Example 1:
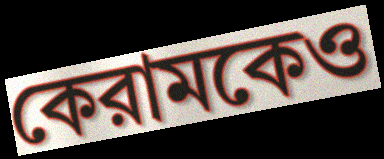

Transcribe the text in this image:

কেরামকেও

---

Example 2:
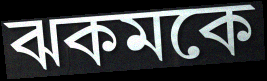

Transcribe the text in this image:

ঝকমকে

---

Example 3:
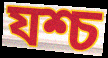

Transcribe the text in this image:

যশ্চ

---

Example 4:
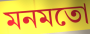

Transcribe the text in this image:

মনমতো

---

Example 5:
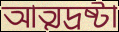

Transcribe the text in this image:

আত্মদ্রষ্টা